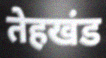
तेहखंड